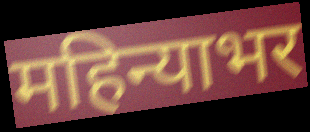
महिन्याभर